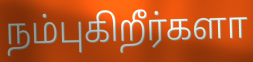
நம்புகிறீர்களா